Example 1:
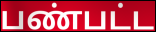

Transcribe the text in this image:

பண்பட்ட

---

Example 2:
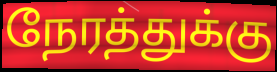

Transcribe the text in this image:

நேரத்துக்கு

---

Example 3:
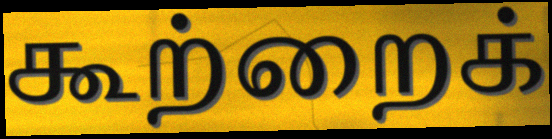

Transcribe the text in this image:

கூற்றைக்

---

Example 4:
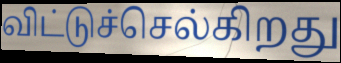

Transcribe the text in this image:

விட்டுச்செல்கிறது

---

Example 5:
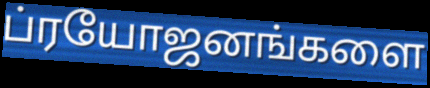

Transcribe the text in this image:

ப்ரயோஜனங்களை